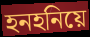
হনহনিয়ে